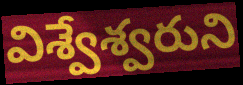
విశ్వేశ్వరుని